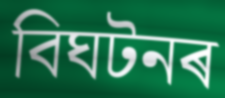
বিঘটনৰ